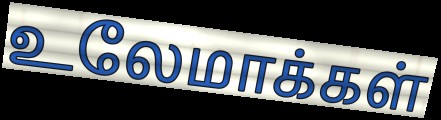
உலேமாக்கள்